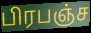
பிரபஞ்ச